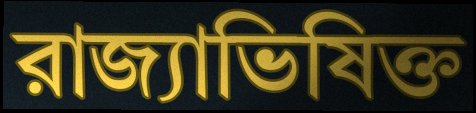
রাজ্যাভিষিক্ত